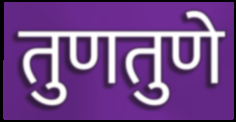
तुणतुणे